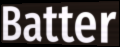
Batter